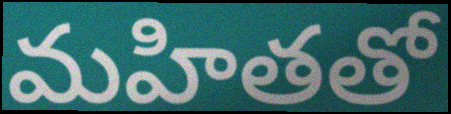
మహితతో